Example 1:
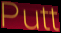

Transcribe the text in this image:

Putt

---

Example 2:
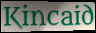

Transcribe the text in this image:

Kincaid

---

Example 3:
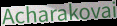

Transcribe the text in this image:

Acharakovai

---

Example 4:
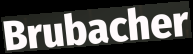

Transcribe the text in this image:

Brubacher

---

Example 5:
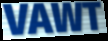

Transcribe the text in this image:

VAWT